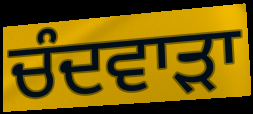
ਚੰਦਵਾੜਾ